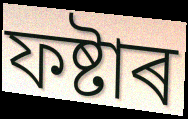
ফষ্টাৰ